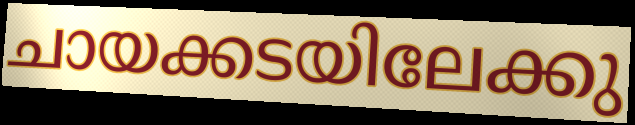
ചായക്കടയിലേക്കു